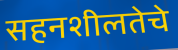
सहनशीलतेचे